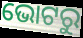
ଭୋଟରୁ